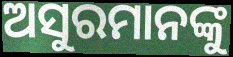
ଅସୁରମାନଙ୍କୁ